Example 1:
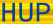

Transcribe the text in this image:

HUP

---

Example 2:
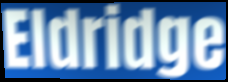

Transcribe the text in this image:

Eldridge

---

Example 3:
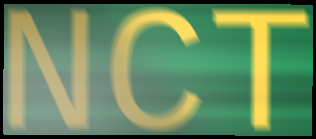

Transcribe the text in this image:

NCT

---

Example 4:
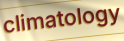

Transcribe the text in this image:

climatology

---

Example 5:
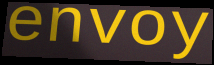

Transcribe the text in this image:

envoy